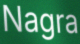
Nagra